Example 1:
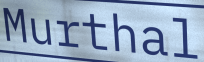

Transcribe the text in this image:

Murthal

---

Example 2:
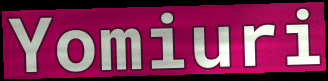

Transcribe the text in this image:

Yomiuri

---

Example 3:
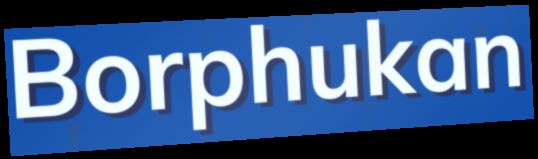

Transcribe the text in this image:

Borphukan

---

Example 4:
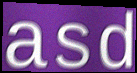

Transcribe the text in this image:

asd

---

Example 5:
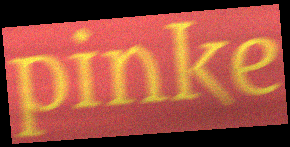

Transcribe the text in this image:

pinke